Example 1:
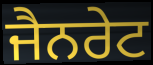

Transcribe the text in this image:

ਜੈਨਰੇਟ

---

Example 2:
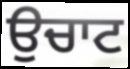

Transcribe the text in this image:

ਉਚਾਟ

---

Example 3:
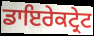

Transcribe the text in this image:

ਡਾਇਰੇਕਟ੍ਰੇਟ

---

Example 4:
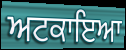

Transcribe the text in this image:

ਅਟਕਾਇਆ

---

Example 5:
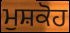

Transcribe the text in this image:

ਮੁਸ਼ਕੋਹ